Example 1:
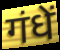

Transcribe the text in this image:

गंधें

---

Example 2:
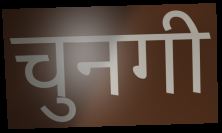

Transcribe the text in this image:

चुनगी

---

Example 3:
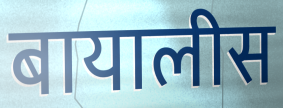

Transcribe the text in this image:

बायालीस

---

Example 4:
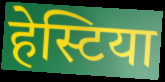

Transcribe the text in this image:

हेस्टिया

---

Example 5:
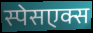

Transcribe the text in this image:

स्पेसएक्स